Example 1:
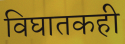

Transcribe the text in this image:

विघातकही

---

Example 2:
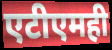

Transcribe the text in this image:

एटीएमही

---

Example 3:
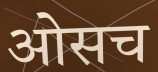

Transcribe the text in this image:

ओसच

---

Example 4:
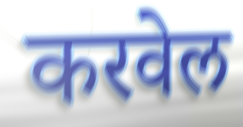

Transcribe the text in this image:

करवेल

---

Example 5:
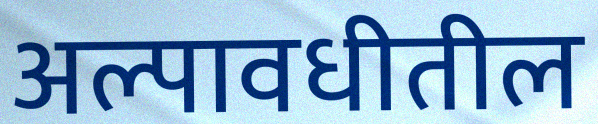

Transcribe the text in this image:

अल्पावधीतील